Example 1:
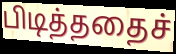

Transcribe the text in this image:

பிடித்ததைச்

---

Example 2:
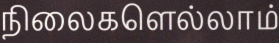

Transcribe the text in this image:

நிலைகளெல்லாம்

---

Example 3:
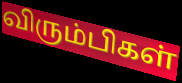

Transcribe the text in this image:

விரும்பிகள்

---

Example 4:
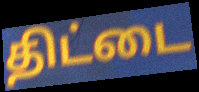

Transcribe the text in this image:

திட்டை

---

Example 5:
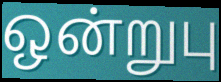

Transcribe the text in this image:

ஒன்றுபு